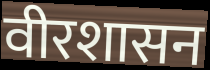
वीरशासन